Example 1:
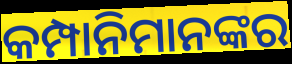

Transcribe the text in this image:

କମ୍ପାନିମାନଙ୍କର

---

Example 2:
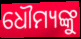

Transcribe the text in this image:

ଧୌମ୍ୟଙ୍କୁ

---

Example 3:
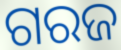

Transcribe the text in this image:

ଗରଜ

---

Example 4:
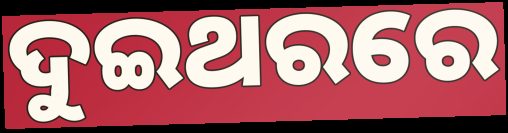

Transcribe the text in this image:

ଦୁଇଥରରେ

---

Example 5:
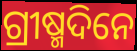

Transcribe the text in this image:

ଗ୍ରୀଷ୍ମଦିନେ